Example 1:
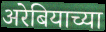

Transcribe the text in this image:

अरेबियाच्या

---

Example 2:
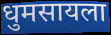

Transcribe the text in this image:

धुमसायला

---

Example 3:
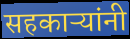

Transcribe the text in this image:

सहकाऱ्यांनी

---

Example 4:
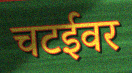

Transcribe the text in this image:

चटईवर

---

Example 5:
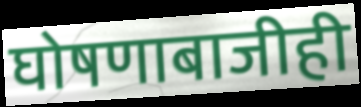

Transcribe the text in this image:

घोषणाबाजीही